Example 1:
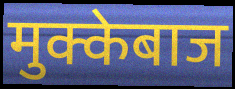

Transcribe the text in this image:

मुक्केबाज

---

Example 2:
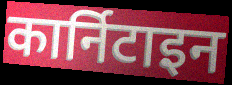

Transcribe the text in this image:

कार्निटाइन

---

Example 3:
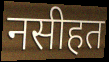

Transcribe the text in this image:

नसीहत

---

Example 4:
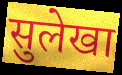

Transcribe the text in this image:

सुलेखा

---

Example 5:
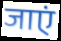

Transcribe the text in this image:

जाएं